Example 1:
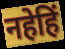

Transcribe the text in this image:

नहेहिं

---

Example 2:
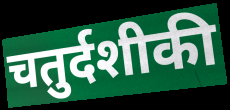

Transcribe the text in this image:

चतुर्दशीकी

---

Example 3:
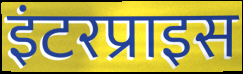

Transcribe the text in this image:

इंटरप्राइस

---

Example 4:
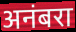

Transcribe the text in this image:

अनंबरा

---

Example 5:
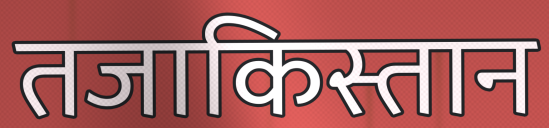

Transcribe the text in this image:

तजाकिस्‍तान